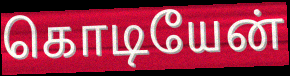
கொடியேன்